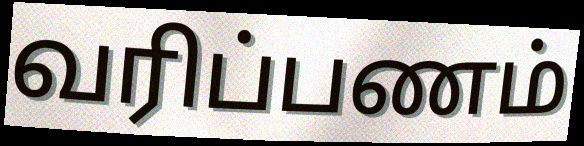
வரிப்பணம்